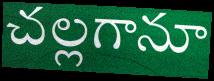
చల్లగానూ